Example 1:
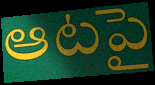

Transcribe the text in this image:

ఆటపై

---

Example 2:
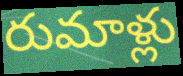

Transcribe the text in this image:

రుమాళ్లు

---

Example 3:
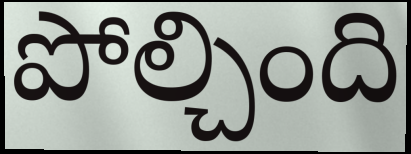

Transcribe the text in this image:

పోల్చింది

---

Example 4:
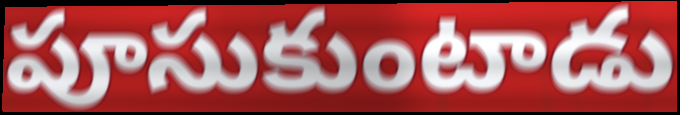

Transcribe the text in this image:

పూసుకుంటాడు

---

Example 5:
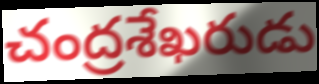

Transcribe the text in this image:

చంద్రశేఖరుడు